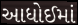
આધોઈમાં